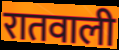
रातवाली